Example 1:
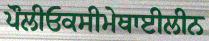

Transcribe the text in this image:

ਪੌਲੀਓਕਸੀਮੇਥਾਈਲੀਨ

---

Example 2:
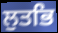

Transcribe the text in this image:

ਲੁਤਭਿ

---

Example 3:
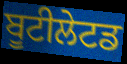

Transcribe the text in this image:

ਬੂਟੀਲੇਟਡ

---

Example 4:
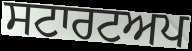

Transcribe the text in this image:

ਸਟਾਰਟਅਪ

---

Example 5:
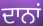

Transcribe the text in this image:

ਦਾਨਾਂ